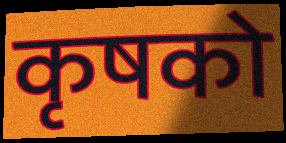
कृषको